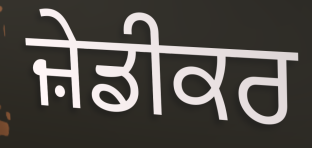
ਜ਼ੇਡੀਕਰ